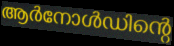
ആർനോൾഡിന്റെ